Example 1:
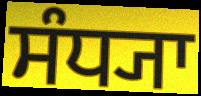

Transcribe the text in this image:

ਸੰਧ੍ਯਾ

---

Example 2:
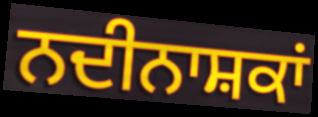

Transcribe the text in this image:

ਨਦੀਨਾਸ਼ਕਾਂ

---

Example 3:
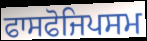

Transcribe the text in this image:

ਫਾਸਫੋਜਿਪਸਮ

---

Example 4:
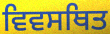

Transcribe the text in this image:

ਵਿਵਸਥਿਤ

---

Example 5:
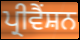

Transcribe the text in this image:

ਪ੍ਰੀਵੈਂਸ਼ਨ